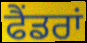
ਫੈਂਡਰਾਂ